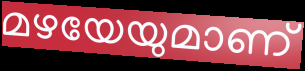
മഴയേയുമാണ്